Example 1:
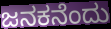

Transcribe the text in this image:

ಜನಕನೆಂದು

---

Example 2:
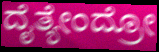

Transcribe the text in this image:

ದೈತ್ಯೇಂದ್ರೋ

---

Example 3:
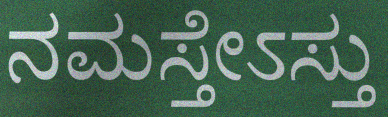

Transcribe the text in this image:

ನಮಸ್ತೇಽಸ್ತು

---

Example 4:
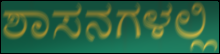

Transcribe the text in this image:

ಶಾಸನಗಳಲ್ಲಿ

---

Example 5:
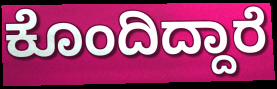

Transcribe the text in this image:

ಕೊಂದಿದ್ದಾರೆ